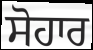
ਸੋਹਾਰ